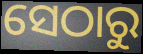
ସେଠାରୁ